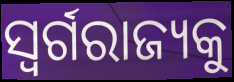
ସ୍ଵର୍ଗରାଜ୍ୟକୁ